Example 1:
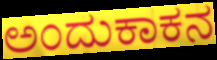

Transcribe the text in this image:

ಅಂದುಕಾಕನ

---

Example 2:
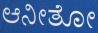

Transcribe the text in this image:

ಆನೀತೋ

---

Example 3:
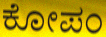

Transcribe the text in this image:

ಕೋಪಂ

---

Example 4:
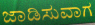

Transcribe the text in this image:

ಜಾಡಿಸುವಾಗ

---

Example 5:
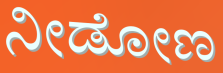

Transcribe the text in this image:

ನೀಡೋಣ